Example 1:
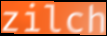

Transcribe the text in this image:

zilch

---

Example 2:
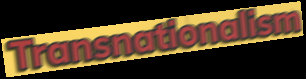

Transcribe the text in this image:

Transnationalism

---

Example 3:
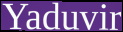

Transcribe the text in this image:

Yaduvir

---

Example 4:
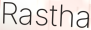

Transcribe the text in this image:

Rastha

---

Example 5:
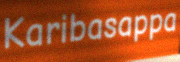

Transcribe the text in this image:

Karibasappa